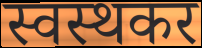
स्वस्थकर